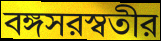
বঙ্গসরস্বতীর